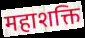
महाशक्ति